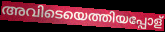
അവിടെയെത്തിയപ്പോള്